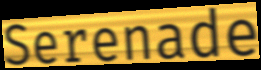
Serenade